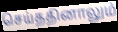
செய்ததினாலும்